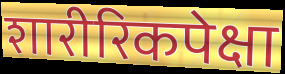
शारीरिकपेक्षा